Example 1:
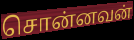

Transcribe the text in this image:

சொன்னவன்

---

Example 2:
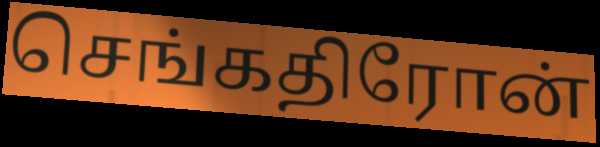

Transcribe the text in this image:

செங்கதிரோன்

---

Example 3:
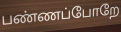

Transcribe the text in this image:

பண்ணப்போறே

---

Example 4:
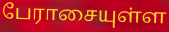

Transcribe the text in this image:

பேராசையுள்ள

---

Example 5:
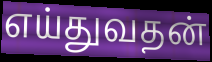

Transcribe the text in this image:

எய்துவதன்